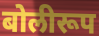
बोलीरूप